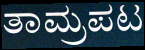
ತಾಮ್ರಪಟ